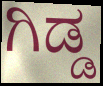
ಗಿಡ್ಡ